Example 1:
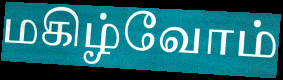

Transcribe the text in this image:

மகிழ்வோம்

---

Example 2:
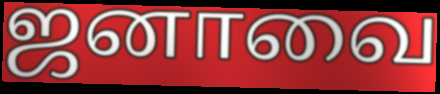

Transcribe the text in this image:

ஜனாவை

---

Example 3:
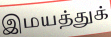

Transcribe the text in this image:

இமயத்துக்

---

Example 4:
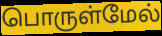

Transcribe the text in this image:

பொருள்மேல்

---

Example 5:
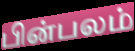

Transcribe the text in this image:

பின்பலம்